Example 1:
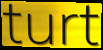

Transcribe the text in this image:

turt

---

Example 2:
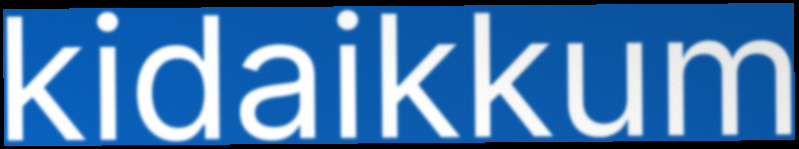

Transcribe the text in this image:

kidaikkum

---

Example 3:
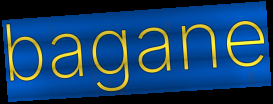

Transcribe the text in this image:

bagane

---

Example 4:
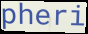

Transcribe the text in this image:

pheri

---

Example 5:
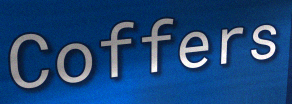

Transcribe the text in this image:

Coffers